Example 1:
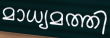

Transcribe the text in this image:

മാധ്യമത്തി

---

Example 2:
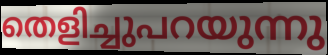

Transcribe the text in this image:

തെളിച്ചുപറയുന്നു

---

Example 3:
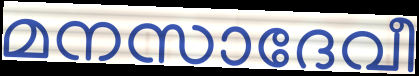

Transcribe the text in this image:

മനസാദേവീ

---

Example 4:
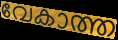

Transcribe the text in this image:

വേകാത്ത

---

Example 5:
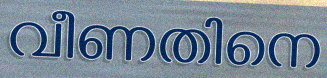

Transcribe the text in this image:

വീണതിനെ